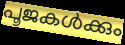
പൂജകൾക്കും